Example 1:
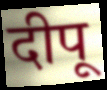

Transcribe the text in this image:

दीपू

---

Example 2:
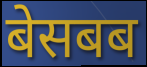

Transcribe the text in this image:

बेसबब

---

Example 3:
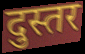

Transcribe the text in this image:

दुस्तर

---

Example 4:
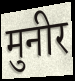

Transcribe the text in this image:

मुनीर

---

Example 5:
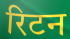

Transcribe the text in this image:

रिटन